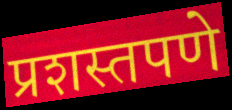
प्रशस्तपणे